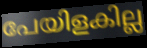
പേയിളകില്ല